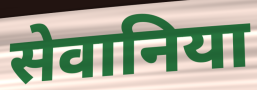
सेवानिया